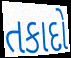
તકાદો